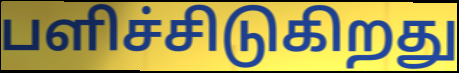
பளிச்சிடுகிறது